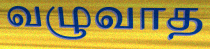
வழுவாத